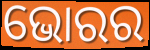
ଭୋରର